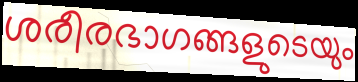
ശരീരഭാഗങ്ങളുടെയും